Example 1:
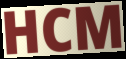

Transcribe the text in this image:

HCM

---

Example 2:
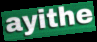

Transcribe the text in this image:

ayithe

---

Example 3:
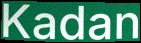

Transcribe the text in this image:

Kadan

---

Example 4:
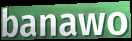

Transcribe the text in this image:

banawo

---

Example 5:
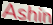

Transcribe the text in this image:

Ashin